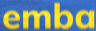
emba